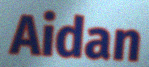
Aidan